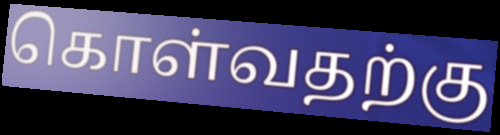
கொள்வதற்கு